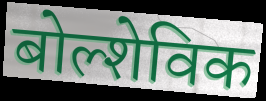
बोल्शेविक